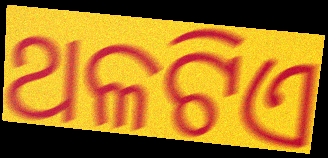
ଥଳଟିଏ